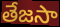
తేజసా